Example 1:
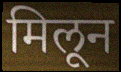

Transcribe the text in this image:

मिलून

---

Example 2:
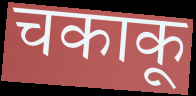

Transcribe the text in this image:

चकाकू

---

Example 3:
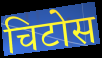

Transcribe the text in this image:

चिटोस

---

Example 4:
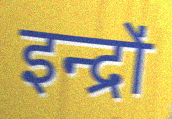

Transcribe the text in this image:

इन्द्रो॑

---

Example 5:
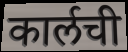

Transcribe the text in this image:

कार्लची